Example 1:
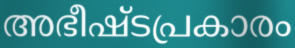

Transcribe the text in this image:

അഭീഷ്ടപ്രകാരം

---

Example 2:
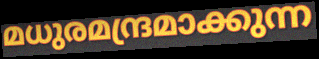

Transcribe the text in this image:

മധുരമന്ദ്രമാക്കുന്ന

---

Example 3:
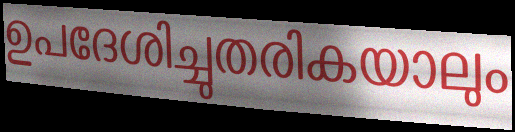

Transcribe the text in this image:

ഉപദേശിച്ചുതരികയാലും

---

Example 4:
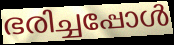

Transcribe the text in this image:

ഭരിച്ചപ്പോൾ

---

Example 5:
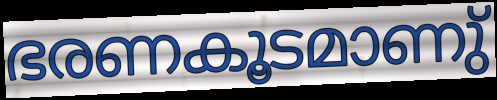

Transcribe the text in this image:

ഭരണകൂടമാണു്